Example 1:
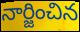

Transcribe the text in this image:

నార్జించిన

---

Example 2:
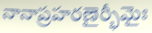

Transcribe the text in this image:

నానాప్రహరణైర్భీమైః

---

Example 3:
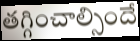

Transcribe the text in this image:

తగ్గించాల్సిందే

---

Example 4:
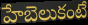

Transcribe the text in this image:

హేబెలుకంటే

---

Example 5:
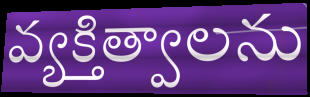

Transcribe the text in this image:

వ్యక్తిత్వాలను